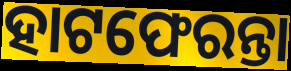
ହାଟଫେରନ୍ତା